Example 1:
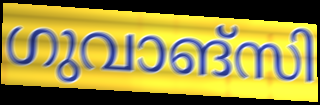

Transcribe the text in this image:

ഗുവാങ്സി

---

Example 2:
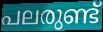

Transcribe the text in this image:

പലരുണ്ട്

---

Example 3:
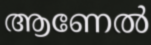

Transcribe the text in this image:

ആണേൽ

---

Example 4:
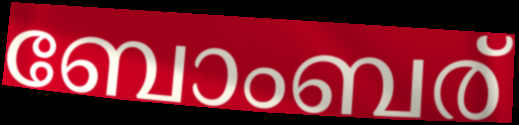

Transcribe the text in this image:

ബോംബര്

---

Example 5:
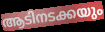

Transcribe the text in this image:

ആടിനടക്കയും